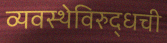
व्यवस्थेविरुद्धची